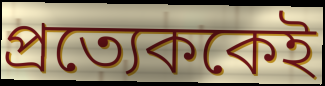
প্রত্যেককেই